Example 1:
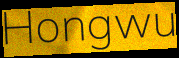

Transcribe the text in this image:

Hongwu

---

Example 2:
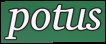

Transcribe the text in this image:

potus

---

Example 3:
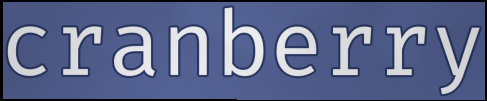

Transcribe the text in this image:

cranberry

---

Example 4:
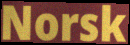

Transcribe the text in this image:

Norsk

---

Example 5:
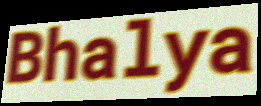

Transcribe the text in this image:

Bhalya